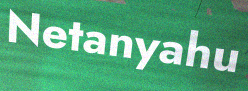
Netanyahu